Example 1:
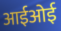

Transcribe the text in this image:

आईओई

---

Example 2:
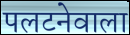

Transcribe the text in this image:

पलटनेवाला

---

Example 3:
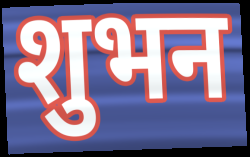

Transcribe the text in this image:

शुभन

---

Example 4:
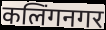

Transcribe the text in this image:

कलिंगनगर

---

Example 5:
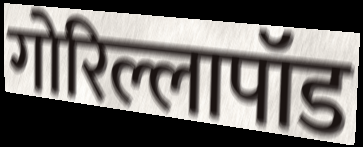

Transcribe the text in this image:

गोरिल्लापॉड